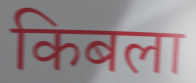
किबला